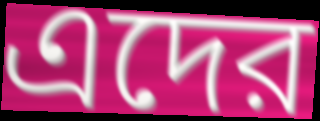
এদের